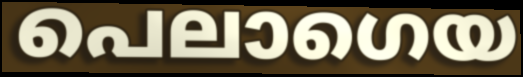
പെലാഗെയ